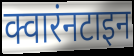
क्वारंनटाइन